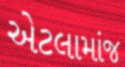
એટલામાંજ